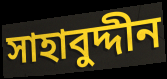
সাহাবুদ্দীন